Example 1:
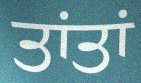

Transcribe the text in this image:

ਤਾਂਤਾਂ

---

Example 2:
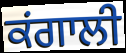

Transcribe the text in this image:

ਕਂਗਾਲੀ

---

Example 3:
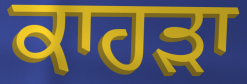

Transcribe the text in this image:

ਕਾਹੜਾ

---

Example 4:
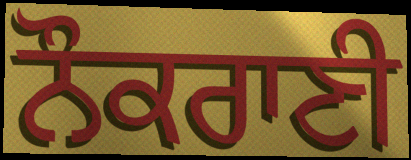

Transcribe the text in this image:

ਨੌਕਰਾਣੀ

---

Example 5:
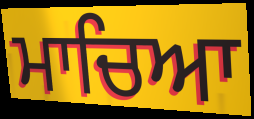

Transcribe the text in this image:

ਮਾਚਿਆ